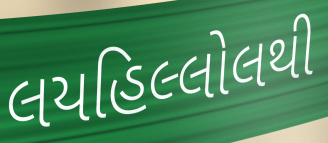
લયહિલ્લોલથી